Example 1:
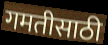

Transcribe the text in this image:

गमतीसाठी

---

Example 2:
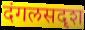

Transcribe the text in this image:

दंगलसदृश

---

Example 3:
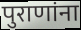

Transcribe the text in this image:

पुराणांना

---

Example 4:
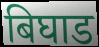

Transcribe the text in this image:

बिघाड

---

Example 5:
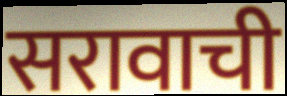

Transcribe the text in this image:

सरावाची